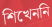
শিখেননি